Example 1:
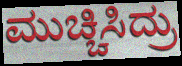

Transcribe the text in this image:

ಮುಚ್ಚಿಸಿದ್ರು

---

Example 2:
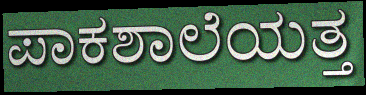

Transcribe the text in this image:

ಪಾಕಶಾಲೆಯತ್ತ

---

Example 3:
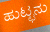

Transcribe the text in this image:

ಹುಟ್ಟನು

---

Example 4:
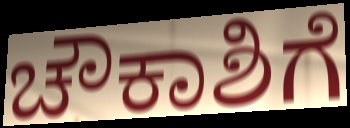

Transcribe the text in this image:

ಚೌಕಾಶಿಗೆ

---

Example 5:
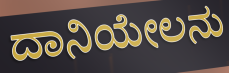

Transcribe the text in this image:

ದಾನಿಯೇಲನು